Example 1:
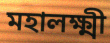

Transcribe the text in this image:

মহালক্ষ্মী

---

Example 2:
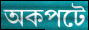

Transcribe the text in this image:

অকপটে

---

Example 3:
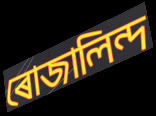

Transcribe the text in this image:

ৰোজালিন্দ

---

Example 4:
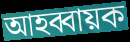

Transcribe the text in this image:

আহব্বায়ক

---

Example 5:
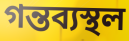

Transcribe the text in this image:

গন্তব্যস্থল